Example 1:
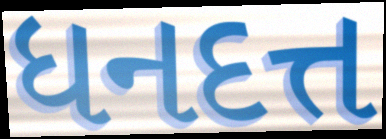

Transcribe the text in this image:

ધનદત્ત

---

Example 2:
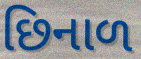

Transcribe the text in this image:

છિનાળ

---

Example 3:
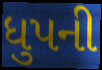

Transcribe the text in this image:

ધુપની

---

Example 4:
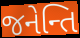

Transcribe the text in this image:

જનેન્તિ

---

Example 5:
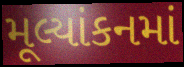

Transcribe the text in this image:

મૂલ્યાંકનમાં